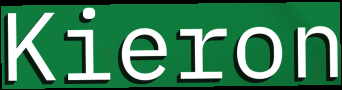
Kieron